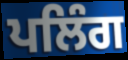
ਪਲਿੰਗ